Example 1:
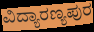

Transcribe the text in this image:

ವಿದ್ಯಾರಣ್ಯಪುರ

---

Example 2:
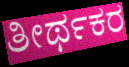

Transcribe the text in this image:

ತೀರ್ಥಕರ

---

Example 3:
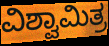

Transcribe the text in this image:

ವಿಶ್ವಾಮಿತ್ರ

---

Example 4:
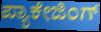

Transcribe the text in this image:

ಪ್ಯಾಕೇಜಿಂಗ್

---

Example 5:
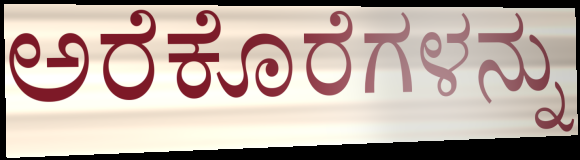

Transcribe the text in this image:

ಅರೆಕೊರೆಗಳನ್ನು